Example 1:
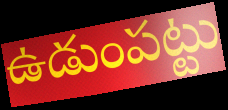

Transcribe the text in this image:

ఉడుంపట్టు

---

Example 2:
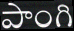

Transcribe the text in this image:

పాంగి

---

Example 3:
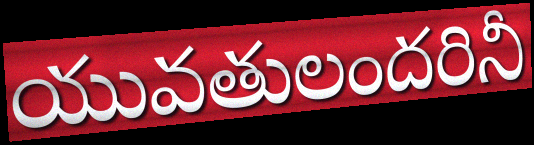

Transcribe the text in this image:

యువతులందరినీ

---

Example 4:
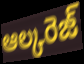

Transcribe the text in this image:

ఆల్కరెజ్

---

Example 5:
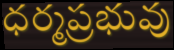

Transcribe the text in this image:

ధర్మప్రభువు